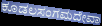
ಕೂಡಲಸಂಗಮದೇವಾ